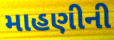
માહણીની